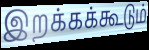
இறக்கக்கூடும்